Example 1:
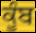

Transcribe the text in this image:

ਕੂੰਬ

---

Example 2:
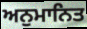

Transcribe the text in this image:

ਅਨੁਮਾਨਿਤ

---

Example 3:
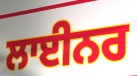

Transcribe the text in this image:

ਲਾਈਨਰ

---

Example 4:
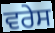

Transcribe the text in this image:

ਵਰੇਸ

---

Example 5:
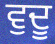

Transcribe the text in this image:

ਵੁਦੂ